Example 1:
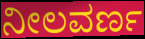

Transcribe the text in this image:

ನೀಲವರ್ಣ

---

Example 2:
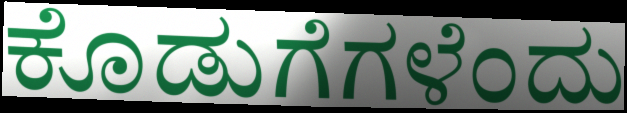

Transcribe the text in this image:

ಕೊಡುಗೆಗಳೆಂದು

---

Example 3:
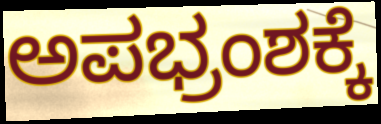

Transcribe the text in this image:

ಅಪಭ್ರಂಶಕ್ಕೆ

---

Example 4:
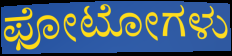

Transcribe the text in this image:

ಫೋಟೋಗಳು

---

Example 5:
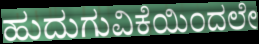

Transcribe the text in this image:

ಹುದುಗುವಿಕೆಯಿಂದಲೇ